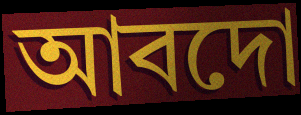
আবদো